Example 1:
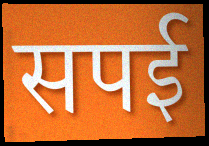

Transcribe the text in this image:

सपई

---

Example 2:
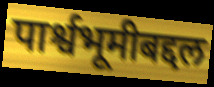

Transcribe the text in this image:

पार्श्वभूमीबद्दल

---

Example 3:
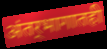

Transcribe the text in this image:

अंतर्भागातही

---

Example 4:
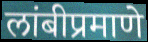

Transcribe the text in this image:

लांबीप्रमाणे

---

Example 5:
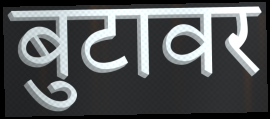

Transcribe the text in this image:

बुटावर